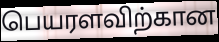
பெயரளவிற்கான